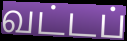
வட்டப்